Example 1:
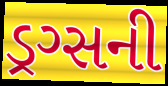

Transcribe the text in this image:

ડ્રગ્સની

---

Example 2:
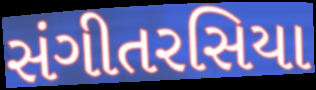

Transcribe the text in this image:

સંગીતરસિયા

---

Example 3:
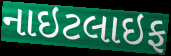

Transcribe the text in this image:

નાઇટલાઇફ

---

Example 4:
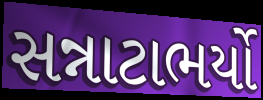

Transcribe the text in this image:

સન્નાટાભર્યો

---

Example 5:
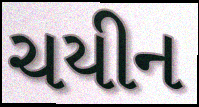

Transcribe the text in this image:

ચયીન